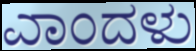
ಎಾಂದಳು